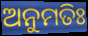
ଅନୁମତିଃ